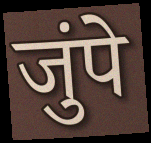
जुंपे